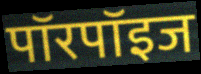
पॉरपॉइज